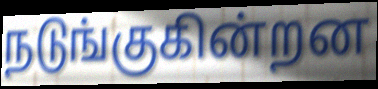
நடுங்குகின்றன